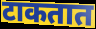
टाकतात